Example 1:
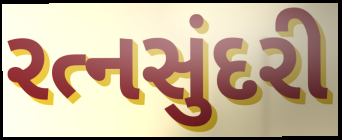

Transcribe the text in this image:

રત્નસુંદરી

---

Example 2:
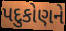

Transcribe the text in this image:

પદુકોણને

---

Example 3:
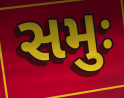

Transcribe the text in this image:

સમુઃ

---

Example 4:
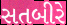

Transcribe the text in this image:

સતબીરે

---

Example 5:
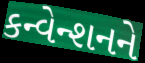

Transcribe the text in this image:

કન્વેન્શનને